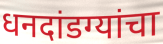
धनदांडग्यांचा